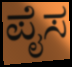
ಪೈಸ